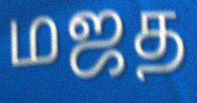
மஜத